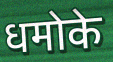
धमोके